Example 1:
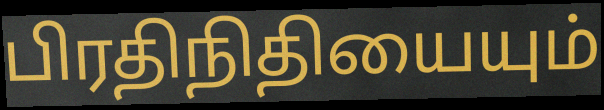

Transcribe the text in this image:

பிரதிநிதியையும்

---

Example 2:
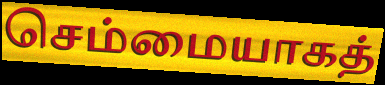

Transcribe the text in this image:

செம்மையாகத்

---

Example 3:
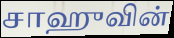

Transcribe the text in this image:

சாஹுவின்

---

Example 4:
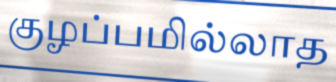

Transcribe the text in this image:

குழப்பமில்லாத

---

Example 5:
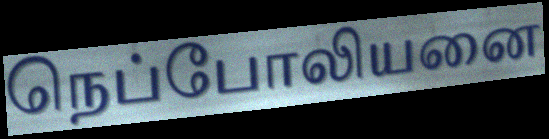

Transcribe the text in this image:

நெப்போலியனை